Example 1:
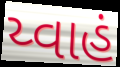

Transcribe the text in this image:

ય્વાહં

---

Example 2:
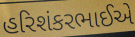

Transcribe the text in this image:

હરિશંકરભાઈએ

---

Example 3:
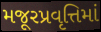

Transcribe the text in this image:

મજૂરપ્રવૃત્તિમાં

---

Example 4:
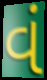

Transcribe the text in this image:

વં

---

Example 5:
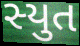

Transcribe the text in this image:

સ્યુત